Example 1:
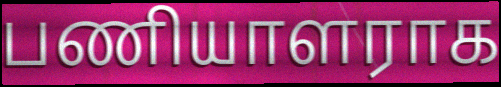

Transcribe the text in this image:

பணியாளராக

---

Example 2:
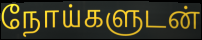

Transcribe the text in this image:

நோய்களுடன்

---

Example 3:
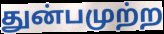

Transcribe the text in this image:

துன்பமுற்ற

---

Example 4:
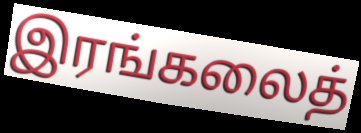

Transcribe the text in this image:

இரங்கலைத்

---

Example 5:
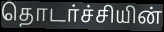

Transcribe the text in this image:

தொடர்ச்சியின்